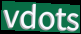
vdots